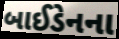
બાઈડેનના